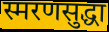
स्मरणसुद्धा